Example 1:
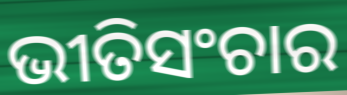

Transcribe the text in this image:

ଭୀତିସଂଚାର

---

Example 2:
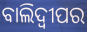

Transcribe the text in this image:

ବାଲିଦ୍ୱୀପର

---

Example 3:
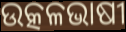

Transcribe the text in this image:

ଉତ୍କଳଭାଷୀ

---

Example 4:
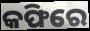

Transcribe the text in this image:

କଫିରେ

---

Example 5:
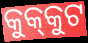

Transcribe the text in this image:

କୁକ୍‍କୁଟ